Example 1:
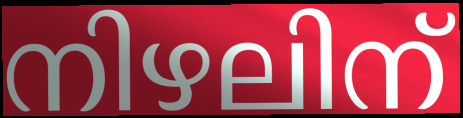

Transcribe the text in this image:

നിഴലിന്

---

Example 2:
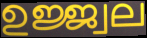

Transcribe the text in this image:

ഉജ്ജ്വല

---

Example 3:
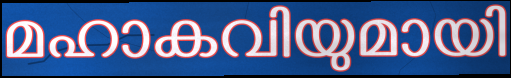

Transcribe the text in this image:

മഹാകവിയുമായി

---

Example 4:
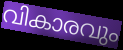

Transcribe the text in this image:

വികാരവും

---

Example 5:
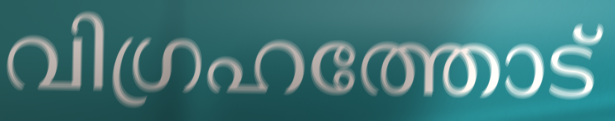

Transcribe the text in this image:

വിഗ്രഹത്തോട്